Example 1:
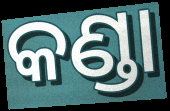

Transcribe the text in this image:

କଣ୍ଡା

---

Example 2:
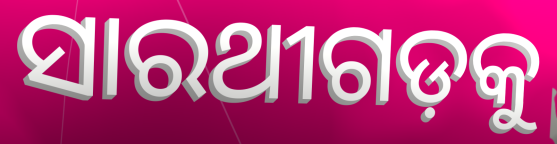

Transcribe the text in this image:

ସାରଥୀଗଡ଼କୁ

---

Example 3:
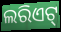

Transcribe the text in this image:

ଲରିଏଟ୍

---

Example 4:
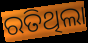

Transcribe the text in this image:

ରତିଥିଲା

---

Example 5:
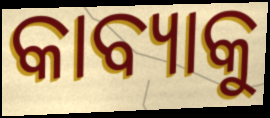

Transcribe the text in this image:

କାବ୍ୟାକୁ